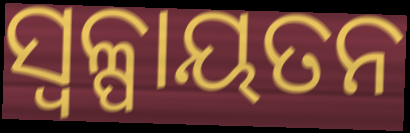
ସ୍ୱଳ୍ପାୟତନ